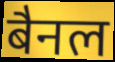
बैनल